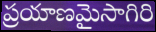
ప్రయాణమైసాగిరి